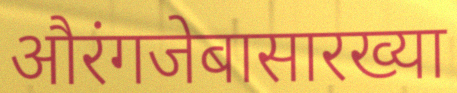
औरंगजेबासारख्या